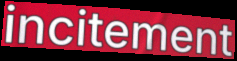
incitement